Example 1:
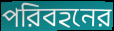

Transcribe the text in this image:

পরিবহনের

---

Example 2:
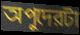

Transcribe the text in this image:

অপুদেরটা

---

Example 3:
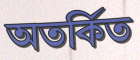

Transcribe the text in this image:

অতর্কিত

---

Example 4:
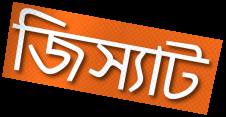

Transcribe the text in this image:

জিস্যাট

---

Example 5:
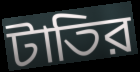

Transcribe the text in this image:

টাতির